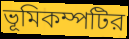
ভূমিকম্পটির